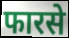
फारसे